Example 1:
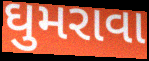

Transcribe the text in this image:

ઘુમરાવા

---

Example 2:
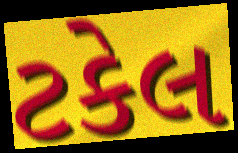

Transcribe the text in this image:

ટકેલ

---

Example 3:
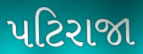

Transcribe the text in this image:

પટિરાજા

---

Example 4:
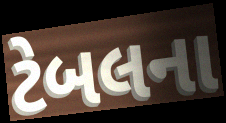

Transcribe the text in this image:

ટેબલના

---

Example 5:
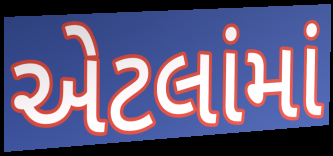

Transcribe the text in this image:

એટલાંમાં